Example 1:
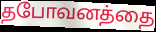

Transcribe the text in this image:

தபோவனத்தை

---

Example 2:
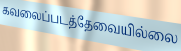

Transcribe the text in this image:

கவலைப்படத்தேவையில்லை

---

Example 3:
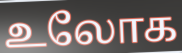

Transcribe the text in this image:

உலோக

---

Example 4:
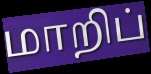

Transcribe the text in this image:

மாறிப்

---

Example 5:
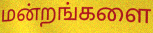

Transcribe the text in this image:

மன்றங்களை